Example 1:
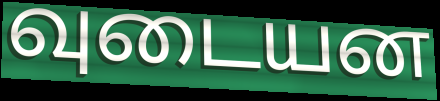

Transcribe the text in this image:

வுடையன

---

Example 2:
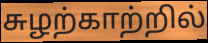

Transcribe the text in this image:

சுழற்காற்றில்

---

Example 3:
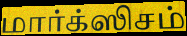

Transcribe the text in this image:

மார்க்ஸிசம்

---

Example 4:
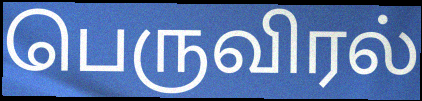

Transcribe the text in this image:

பெருவிரல்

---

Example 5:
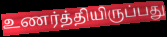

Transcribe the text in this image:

உணர்த்தியிருப்பது